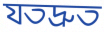
যতদ্রুত